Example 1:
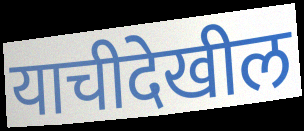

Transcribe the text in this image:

याचीदेखील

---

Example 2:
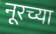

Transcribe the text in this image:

नूरच्या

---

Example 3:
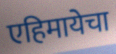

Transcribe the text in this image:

एहिमायेचा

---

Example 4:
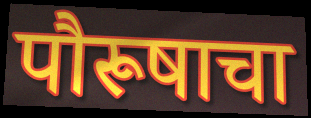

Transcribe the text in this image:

पौरूषाचा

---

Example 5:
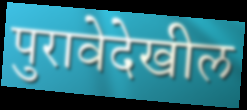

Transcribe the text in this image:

पुरावेदेखील